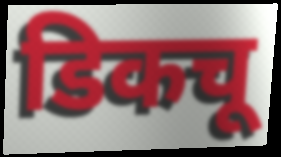
डिकचू